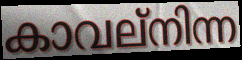
കാവല്നിന്ന